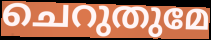
ചെറുതുമേ